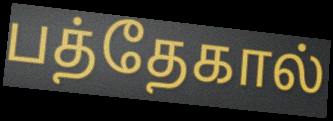
பத்தேகால்